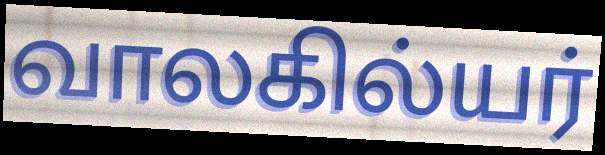
வாலகில்யர்